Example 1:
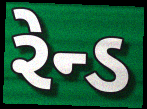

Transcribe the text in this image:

રેન્ડ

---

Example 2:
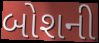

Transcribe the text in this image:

બોશની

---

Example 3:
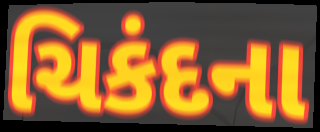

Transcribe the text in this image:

ચિકંદના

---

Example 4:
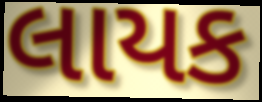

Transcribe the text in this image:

લાયક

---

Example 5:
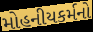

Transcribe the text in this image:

મોહનીયકર્મનો